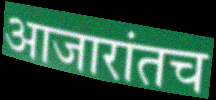
आजारांतच